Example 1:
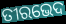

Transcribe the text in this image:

ତୀରଭେଦ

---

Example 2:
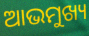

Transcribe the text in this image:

ଆଭମୁଖ୍ୟ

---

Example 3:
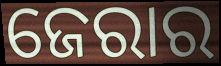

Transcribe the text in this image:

ଜେରାର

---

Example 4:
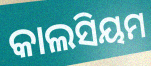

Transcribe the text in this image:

କାଲସିୟମ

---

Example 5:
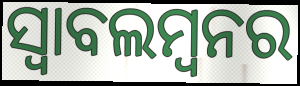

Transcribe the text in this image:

ସ୍ବାବଲମ୍ବନର